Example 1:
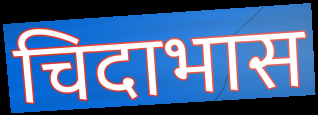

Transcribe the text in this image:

चिदाभास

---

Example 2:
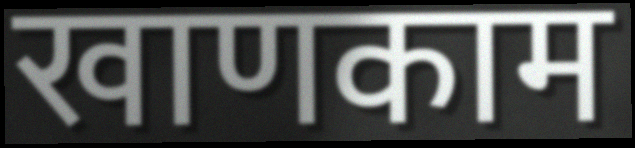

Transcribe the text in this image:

खाणकाम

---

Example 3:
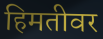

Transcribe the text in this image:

हिमतीवर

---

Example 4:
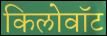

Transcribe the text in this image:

किलोवॉट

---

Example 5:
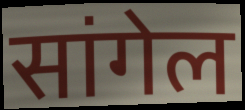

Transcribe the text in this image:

सांगेल